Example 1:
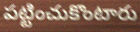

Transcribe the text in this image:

పట్టించుకొంటారు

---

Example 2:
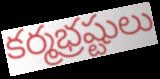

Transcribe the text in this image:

కర్మభ్రష్టులు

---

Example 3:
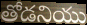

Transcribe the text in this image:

తోడనియు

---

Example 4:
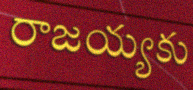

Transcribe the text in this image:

రాజయ్యకు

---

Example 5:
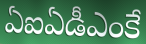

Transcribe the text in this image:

ఏఐఏడీఎంకే